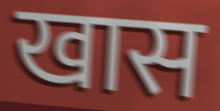
खास